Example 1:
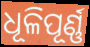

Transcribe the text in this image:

ଧୂଳିପୂର୍ଣ୍ଣ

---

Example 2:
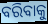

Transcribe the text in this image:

ବରିବାକୁ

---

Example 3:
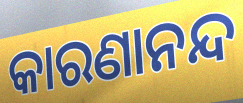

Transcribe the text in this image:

କାରଣାନନ୍ଦ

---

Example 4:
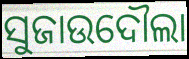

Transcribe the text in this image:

ସୁଜାଉଦୌଲା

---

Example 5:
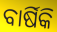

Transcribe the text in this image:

ବାର୍ଷିକି